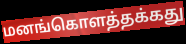
மனங்கொளத்தக்கது